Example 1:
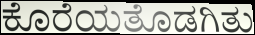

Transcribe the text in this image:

ಕೊರೆಯತೊಡಗಿತು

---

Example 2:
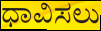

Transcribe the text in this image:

ಧಾವಿಸಲು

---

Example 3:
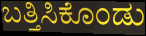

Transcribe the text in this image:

ಬತ್ತಿಸಿಕೊಂಡು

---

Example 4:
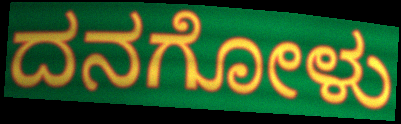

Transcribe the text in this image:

ದನಗೋಳು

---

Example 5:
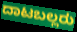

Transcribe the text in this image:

ದಾಟಬಲ್ಲರು